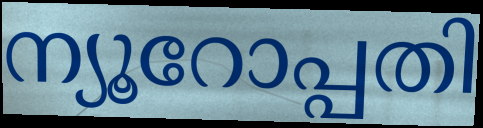
ന്യൂറോപ്പതി